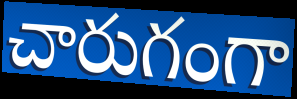
చారుగంగా